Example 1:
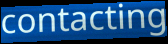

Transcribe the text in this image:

contacting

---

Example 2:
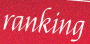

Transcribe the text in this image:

ranking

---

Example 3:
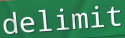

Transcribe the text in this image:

delimit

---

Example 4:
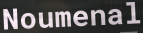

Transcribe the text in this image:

Noumenal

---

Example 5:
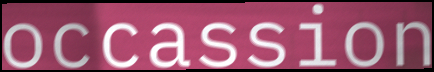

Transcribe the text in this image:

occassion